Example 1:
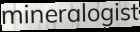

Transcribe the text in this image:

mineralogist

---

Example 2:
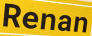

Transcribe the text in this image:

Renan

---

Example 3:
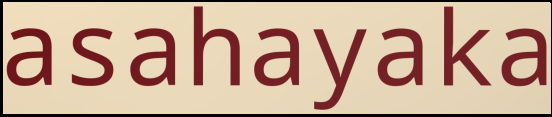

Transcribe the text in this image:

asahayaka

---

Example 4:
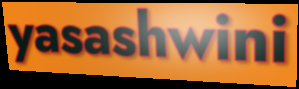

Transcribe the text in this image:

yasashwini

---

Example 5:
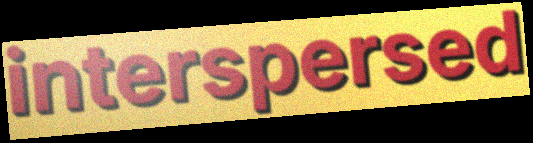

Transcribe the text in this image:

interspersed